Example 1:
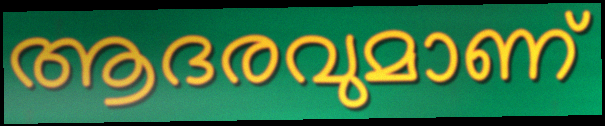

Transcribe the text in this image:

ആദരവുമാണ്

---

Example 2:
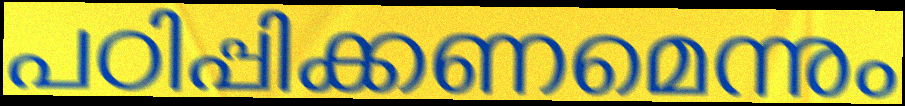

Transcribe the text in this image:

പഠിപ്പിക്കണമെന്നും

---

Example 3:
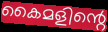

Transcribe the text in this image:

കൈമളിന്റെ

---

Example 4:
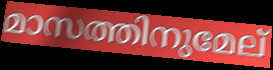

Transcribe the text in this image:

മാസത്തിനുമേല്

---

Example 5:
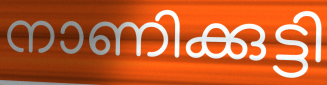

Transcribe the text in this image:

നാണിക്കുട്ടി